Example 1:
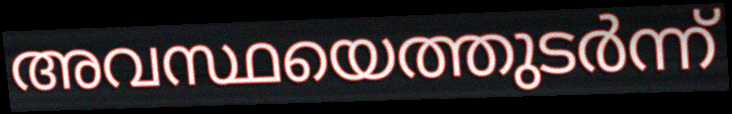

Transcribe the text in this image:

അവസ്ഥയെത്തുടർന്ന്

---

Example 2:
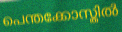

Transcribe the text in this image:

പെന്തക്കോസ്തിൽ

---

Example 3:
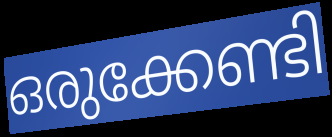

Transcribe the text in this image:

ഒരുക്കേണ്ടി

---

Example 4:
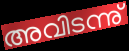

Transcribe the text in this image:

അവിടന്നു്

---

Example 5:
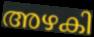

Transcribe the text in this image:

അഴകി